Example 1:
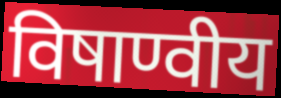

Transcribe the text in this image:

विषाण्वीय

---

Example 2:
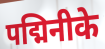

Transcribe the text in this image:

पद्मिनीके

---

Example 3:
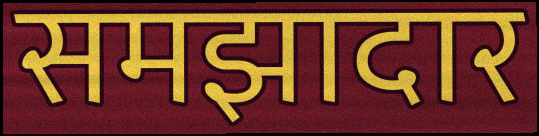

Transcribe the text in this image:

समझादार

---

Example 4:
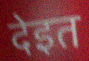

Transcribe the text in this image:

देइत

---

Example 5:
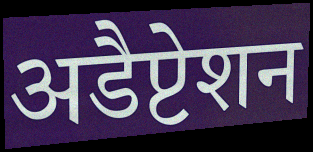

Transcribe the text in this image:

अडैप्टेशन